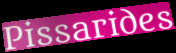
Pissarides